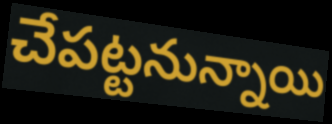
చేపట్టనున్నాయి